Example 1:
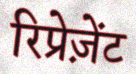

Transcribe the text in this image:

रिप्रेज़ेंट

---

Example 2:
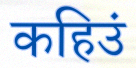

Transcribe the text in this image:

कहिउं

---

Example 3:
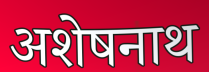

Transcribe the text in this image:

अशेषनाथ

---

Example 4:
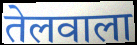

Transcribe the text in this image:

तेलवाला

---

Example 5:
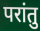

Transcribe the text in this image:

परांतु